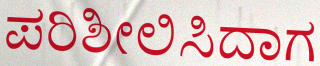
ಪರಿಶೀಲಿಸಿದಾಗ